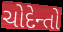
ચોદેન્તો